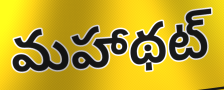
మహాథట్